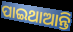
ପାଇଥାଆନ୍ତି